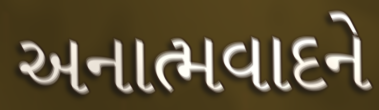
અનાત્મવાદને